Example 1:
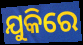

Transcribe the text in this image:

ଯୁକିରେ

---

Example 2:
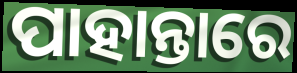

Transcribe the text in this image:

ପାହାନ୍ତାରେ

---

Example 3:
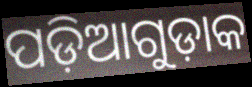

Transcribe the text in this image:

ପଡ଼ିଆଗୁଡ଼ାକ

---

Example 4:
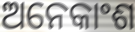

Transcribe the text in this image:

ଅନେକାଂଶ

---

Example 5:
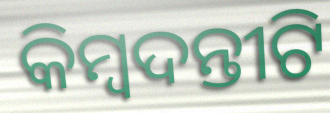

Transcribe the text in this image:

କିମ୍ୱଦନ୍ତୀଟି